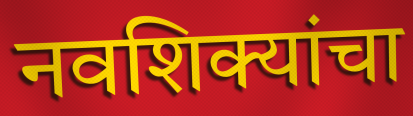
नवशिक्यांचा